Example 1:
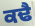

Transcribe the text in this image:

ਕਢੈ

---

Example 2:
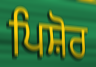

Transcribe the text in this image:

ਪਿਸ਼ੋਰ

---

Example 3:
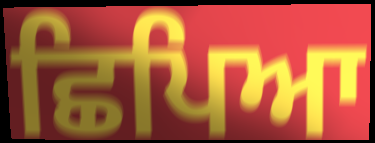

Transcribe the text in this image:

ਛਿਪਿਆ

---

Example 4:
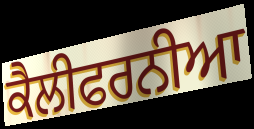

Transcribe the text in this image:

ਕੈਲੀਫਰਨੀਆ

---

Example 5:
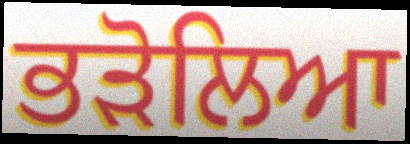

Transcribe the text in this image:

ਭੜੋਲਿਆ